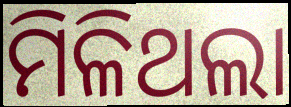
ମିଳିଥଲା